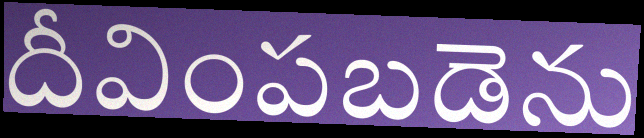
దీవింపబడెను